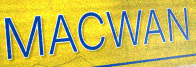
MACWAN